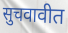
सुचवावीत